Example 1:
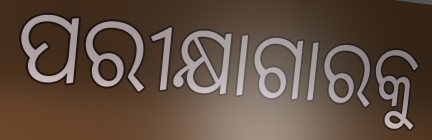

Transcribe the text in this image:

ପରୀକ୍ଷାଗାରକୁ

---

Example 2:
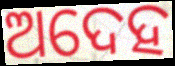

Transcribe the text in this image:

ଅଦେହ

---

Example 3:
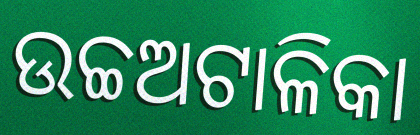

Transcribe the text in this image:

ଉଚ୍ଚଅଟାଳିକା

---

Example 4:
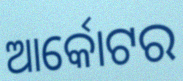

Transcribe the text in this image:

ଆର୍କୋଟର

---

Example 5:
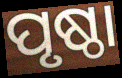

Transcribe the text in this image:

ପୃଷ୍ଠା